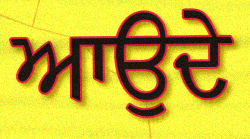
ਆਉਦੇ